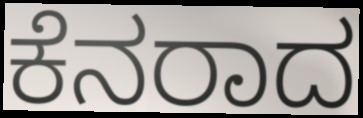
ಕೆನರಾದ